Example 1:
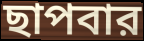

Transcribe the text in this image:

ছাপবার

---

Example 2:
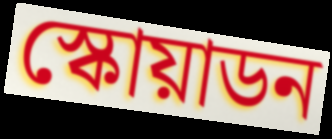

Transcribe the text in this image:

স্কোয়াডন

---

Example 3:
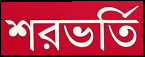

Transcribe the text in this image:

শরভর্তি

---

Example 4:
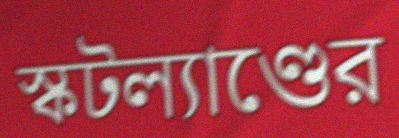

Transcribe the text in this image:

স্কটল্যাণ্ডের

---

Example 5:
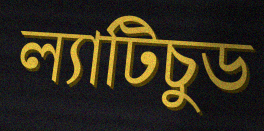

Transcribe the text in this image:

ল্যাটিচুড